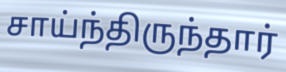
சாய்ந்திருந்தார்